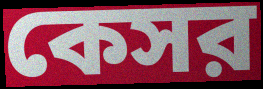
কেসর